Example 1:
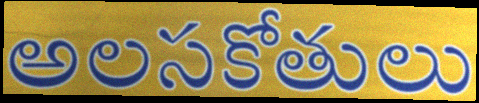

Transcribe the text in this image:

అలసకోతులు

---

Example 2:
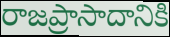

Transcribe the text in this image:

రాజప్రాసాదానికి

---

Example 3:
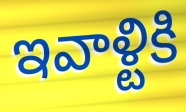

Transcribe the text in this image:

ఇవాళ్టికి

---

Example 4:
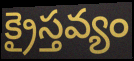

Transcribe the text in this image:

క్రైస్తవ్యం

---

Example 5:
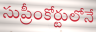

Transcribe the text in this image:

సుప్రీంకోర్టులోనే